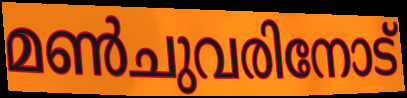
മൺചുവരിനോട്